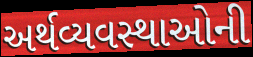
અર્થવ્યવસ્થાઓની